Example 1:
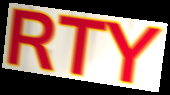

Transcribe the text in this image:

RTY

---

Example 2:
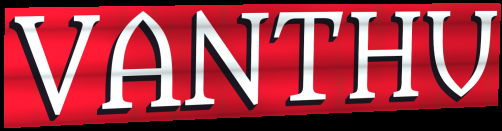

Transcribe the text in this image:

VANTHU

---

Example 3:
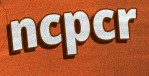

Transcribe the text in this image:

ncpcr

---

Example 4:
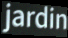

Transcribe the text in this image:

jardin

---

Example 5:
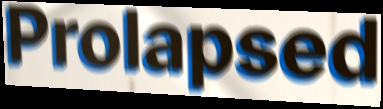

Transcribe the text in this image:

Prolapsed